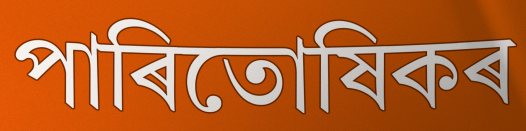
পাৰিতোষিকৰ